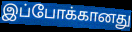
இப்போக்கானது